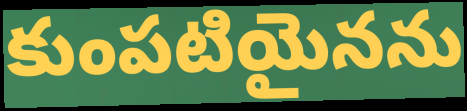
కుంపటియైనను